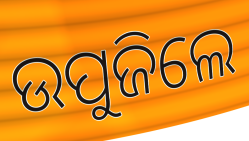
ଉପୁଜିଲେ